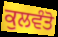
ਕੁਲਵੰਤੋ